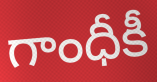
గాంధీకీ